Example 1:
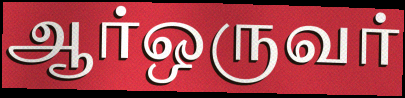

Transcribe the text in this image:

ஆர்ஒருவர்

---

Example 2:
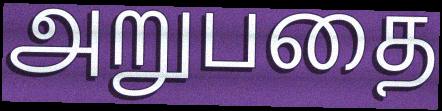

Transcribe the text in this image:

அறுபதை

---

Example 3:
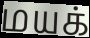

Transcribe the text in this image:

மயக்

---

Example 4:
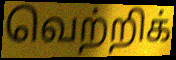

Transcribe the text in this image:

வெற்றிக்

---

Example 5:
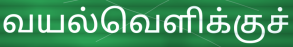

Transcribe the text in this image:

வயல்வெளிக்குச்